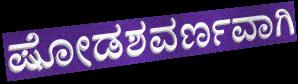
ಷೋಡಶವರ್ಣವಾಗಿ